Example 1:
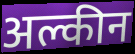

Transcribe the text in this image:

अल्कीन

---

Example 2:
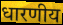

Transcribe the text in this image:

धारणीय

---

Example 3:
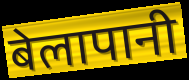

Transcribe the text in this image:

बेलापानी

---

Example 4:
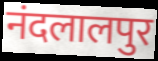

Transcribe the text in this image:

नंदलालपुर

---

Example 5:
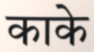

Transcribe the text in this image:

काके